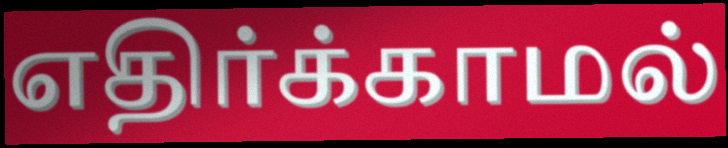
எதிர்க்காமல்